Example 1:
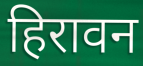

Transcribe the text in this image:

हिरावन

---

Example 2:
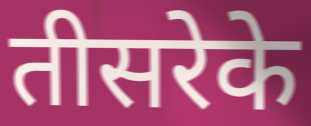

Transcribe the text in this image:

तीसरेके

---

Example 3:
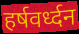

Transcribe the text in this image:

हर्षवर्ध्दन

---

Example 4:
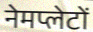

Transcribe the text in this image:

नेमप्लेटों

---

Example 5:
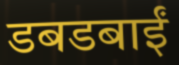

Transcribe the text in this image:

डबडबाईं